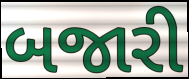
બજારી